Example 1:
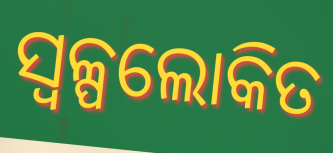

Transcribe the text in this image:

ସ୍ୱଳ୍ପଲୋକିତ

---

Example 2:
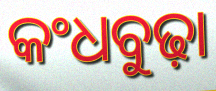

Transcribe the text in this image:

କଂଧବୁଢ଼ା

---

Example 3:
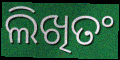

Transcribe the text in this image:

ଲିଖିତଂ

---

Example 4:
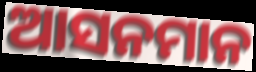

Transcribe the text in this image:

ଆସନମାନ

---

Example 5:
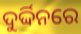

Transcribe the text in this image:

ଦୁର୍ଦ୍ଦିନରେ